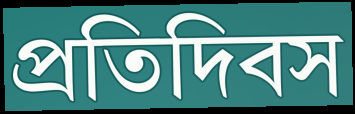
প্রতিদিবস